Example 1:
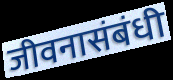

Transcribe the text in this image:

जीवनासंबंधी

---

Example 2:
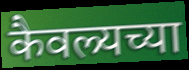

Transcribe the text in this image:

कैवल्यच्या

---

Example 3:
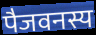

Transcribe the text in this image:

पैजवनस्य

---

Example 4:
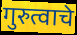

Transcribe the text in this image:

गुरुत्वाचे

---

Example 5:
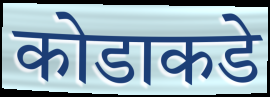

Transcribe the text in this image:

कोडाकडे